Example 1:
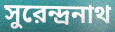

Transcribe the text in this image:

সুরেন্দ্রনাথ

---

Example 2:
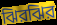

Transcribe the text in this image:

ঝিরঝির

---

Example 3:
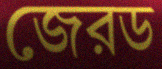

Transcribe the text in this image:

জেরড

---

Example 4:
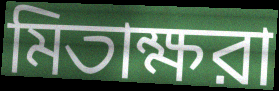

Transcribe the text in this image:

মিতাক্ষরা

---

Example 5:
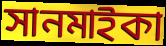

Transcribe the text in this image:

সানমাইকা